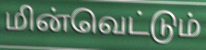
மின்வெட்டும்